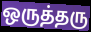
ஒருத்தரு